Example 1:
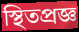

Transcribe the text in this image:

স্থিতপ্রজ্ঞ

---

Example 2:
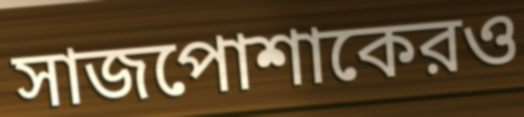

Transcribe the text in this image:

সাজপোশাকেরও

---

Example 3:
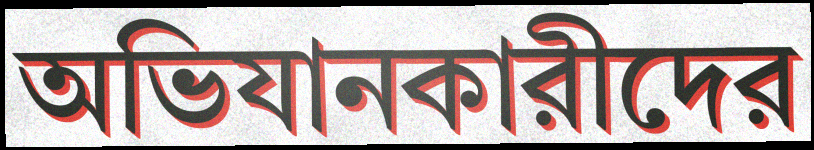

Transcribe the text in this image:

অভিযানকারীদের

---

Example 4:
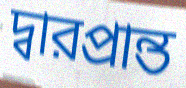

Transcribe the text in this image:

দ্বারপ্রান্ত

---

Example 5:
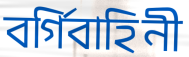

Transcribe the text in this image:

বর্গিবাহিনী